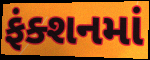
ફંક્શનમાં